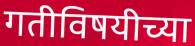
गतीविषयीच्या